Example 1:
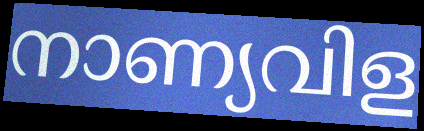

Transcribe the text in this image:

നാണ്യവിള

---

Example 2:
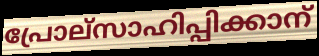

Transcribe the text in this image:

പ്രോല്സാഹിപ്പിക്കാന്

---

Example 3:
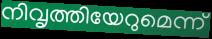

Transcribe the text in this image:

നിവൃത്തിയേറുമെന്ന്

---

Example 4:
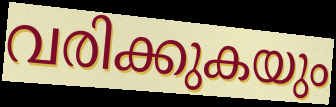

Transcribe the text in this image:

വരിക്കുകയും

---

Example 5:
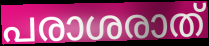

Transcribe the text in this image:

പരാശരാത്